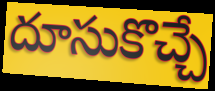
దూసుకొచ్చే